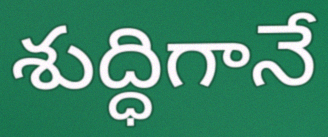
శుద్ధిగానే